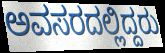
ಅವಸರದಲ್ಲಿದ್ದರು